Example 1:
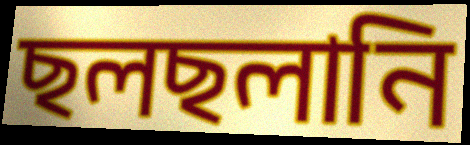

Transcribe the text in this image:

ছলছলানি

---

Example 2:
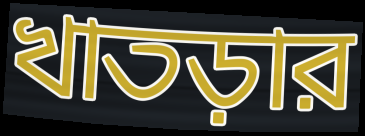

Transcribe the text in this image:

খাতড়ার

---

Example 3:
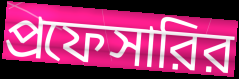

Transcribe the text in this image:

প্রফেসারির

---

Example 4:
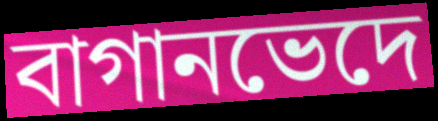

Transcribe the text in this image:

বাগানভেদে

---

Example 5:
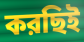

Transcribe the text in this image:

করছিই